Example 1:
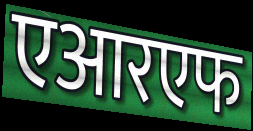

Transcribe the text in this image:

एआरएफ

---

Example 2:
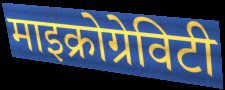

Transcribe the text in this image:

माइक्रोग्रेविटी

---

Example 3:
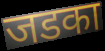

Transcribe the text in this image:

जडका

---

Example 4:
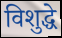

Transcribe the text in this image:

विशुद्धे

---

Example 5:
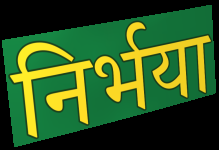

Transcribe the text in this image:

निर्भया